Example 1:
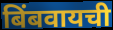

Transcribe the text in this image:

बिंबवायची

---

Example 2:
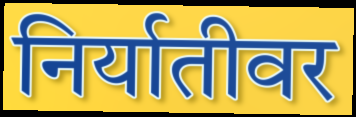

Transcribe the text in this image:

निर्यातीवर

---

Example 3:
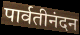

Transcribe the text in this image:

पार्वतीनंदन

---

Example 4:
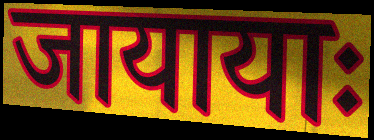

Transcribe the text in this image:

जायायाः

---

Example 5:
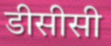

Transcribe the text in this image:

डीसीसी